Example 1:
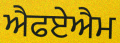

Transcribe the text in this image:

ਐਫਏਐਮ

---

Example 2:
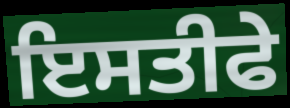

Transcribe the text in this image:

ਇਸਤੀਫੇ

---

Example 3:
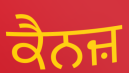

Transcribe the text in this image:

ਕੈਨਜ਼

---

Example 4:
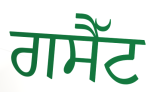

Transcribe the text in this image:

ਗਸੈੱਟ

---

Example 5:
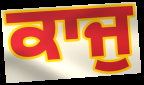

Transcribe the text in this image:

ਕਾਜੁ